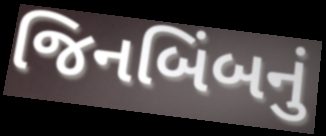
જિનબિંબનું